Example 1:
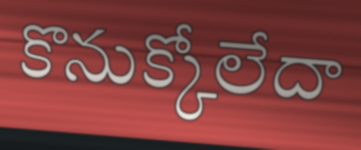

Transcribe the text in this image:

కొనుక్కోలేదా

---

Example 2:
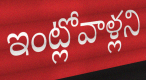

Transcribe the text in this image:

ఇంట్లోవాళ్లని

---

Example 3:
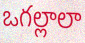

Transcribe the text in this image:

ఒగల్లాలా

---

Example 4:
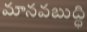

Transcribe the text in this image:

మానవబుద్ధి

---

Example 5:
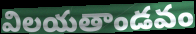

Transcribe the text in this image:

విలయతాండవం